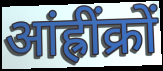
आंह्रींक्रों